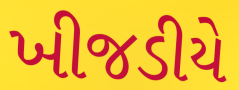
ખીજડીયે